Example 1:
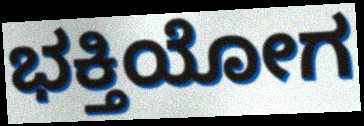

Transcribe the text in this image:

ಭಕ್ತಿಯೋಗ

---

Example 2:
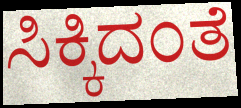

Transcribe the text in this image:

ಸಿಕ್ಕಿದಂತೆ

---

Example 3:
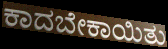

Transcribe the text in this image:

ಕಾದಬೇಕಾಯಿತು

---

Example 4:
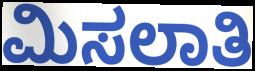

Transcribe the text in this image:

ಮಿಸಲಾತಿ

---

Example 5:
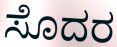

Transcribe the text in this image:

ಸೊದರ